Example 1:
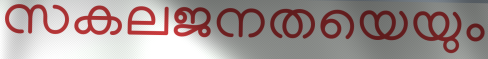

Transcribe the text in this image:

സകലജനതയെയും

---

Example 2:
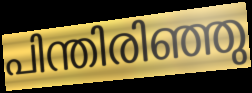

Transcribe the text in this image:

പിന്തിരിഞ്ഞു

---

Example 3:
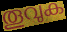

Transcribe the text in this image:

തൂവുക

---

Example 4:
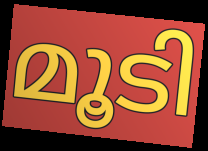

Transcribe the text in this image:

മൂടി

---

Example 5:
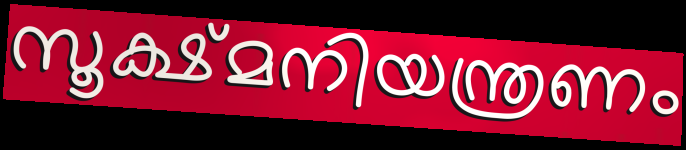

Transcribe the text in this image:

സൂക്ഷ്മനിയന്ത്രണം